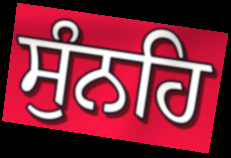
ਸੁੰਨਹਿ